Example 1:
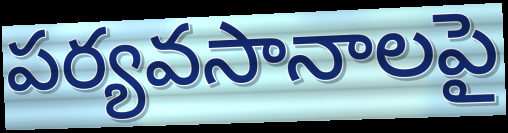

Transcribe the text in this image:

పర్యవసానాలపై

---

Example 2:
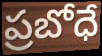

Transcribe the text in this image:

ప్రబోధే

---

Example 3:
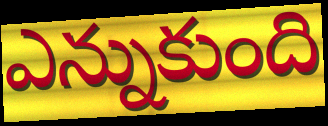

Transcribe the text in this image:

ఎన్నుకుంది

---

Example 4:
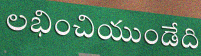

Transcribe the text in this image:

లభించియుండేది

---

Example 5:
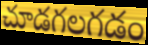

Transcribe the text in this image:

చూడగలగడం